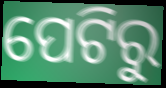
ପେଟିରୁ